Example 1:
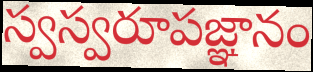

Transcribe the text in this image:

స్వస్వరూపజ్ఞానం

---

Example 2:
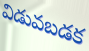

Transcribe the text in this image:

విడువబడక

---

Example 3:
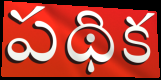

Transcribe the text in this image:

పథిక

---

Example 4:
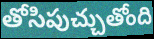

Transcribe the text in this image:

తోసిపుచ్చుతోంది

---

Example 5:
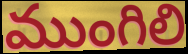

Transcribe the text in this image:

ముంగిలి